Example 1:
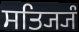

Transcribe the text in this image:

ਸਤ੍ਯ੍ਯਿੰ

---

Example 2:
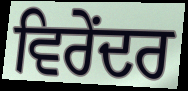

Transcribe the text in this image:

ਵਿਰੇਂਦਰ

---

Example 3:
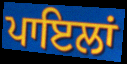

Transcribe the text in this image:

ਪਾਇਲਾਂ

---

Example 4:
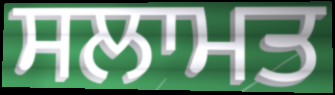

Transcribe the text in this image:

ਸਲਾਮਤ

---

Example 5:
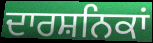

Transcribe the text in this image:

ਦਾਰਸ਼ਨਿਕਾਂ